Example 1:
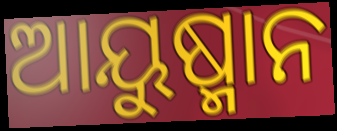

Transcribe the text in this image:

ଆୟୁଷ୍ମାନ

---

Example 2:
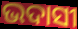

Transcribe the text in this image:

ଭଦାସୀ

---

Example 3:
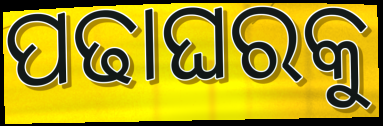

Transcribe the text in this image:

ପଢାଘରକୁ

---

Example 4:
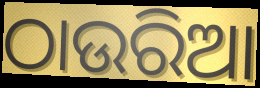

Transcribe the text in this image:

ଠାଉରିଆ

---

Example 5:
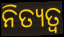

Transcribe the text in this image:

ନିତ୍ୟତ୍ୱ